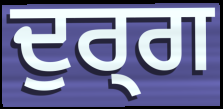
ਦੁਰ੍ਗ